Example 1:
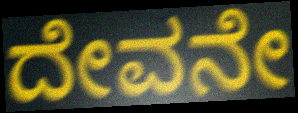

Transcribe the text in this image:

ದೇವನೇ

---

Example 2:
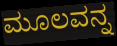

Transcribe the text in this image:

ಮೂಲವನ್ನ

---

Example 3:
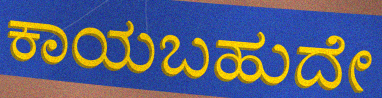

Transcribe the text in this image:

ಕಾಯಬಹುದೇ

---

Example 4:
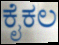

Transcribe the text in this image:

ಕೈಕಲ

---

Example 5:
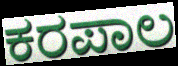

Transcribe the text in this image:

ಕರಪಾಲ